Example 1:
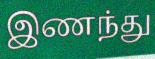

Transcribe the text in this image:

இணந்து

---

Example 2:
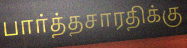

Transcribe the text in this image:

பார்த்தசாரதிக்கு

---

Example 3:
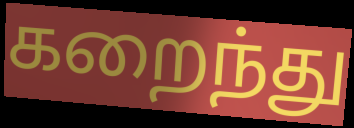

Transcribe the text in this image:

கறைந்து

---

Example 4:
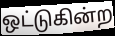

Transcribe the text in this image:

ஒட்டுகின்ற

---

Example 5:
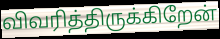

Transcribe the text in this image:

விவரித்திருக்கிறேன்